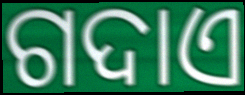
ଗଦାଏ